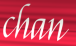
chan